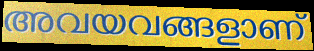
അവയവങ്ങളാണ്